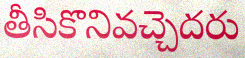
తీసికొనివచ్చెదరు